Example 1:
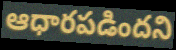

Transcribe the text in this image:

ఆధారపడిందని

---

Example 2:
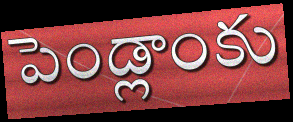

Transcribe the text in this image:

పెండ్లాంకు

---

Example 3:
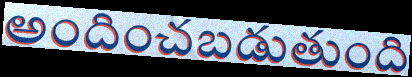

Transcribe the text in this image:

అందించబడుతుంది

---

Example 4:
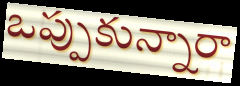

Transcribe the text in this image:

ఒప్పుకున్నారా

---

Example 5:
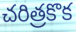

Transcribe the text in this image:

చరిత్రకొక